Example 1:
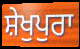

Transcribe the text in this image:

ਸ਼ੇਖੁਪੁਰਾ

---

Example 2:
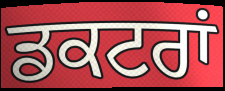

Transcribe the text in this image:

ਡਕਟਰਾਂ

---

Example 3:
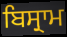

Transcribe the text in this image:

ਬਿਸ੍ਰਾਮ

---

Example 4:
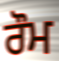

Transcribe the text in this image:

ਰੌਮ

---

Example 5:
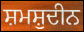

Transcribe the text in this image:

ਸ਼ਮਸ਼ੁਦੀਨ